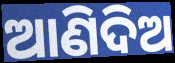
ଆଣିଦିଅ